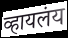
व्हायलंय